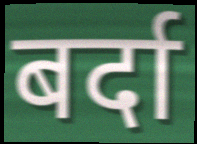
बर्दा